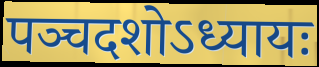
पञ्चदशोऽध्यायः